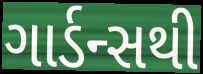
ગાર્ડન્સથી